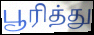
பூரித்து